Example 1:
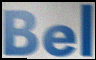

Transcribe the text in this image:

Bel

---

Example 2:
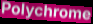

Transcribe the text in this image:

Polychrome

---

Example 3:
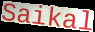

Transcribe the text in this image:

Saikal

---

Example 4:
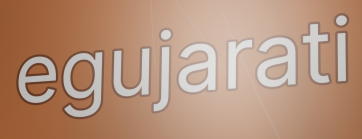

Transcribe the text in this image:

egujarati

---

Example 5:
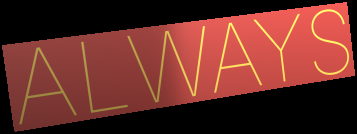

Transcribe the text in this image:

ALWAYS